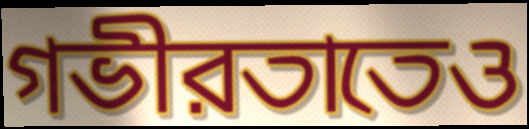
গভীরতাতেও